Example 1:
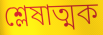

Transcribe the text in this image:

শ্লেষাত্মক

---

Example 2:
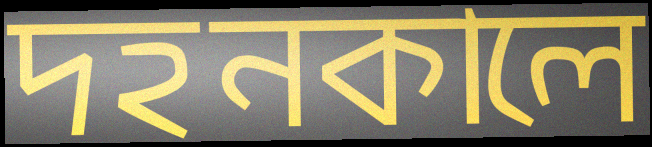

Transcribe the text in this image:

দহনকালে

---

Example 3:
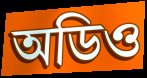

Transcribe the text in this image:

অডিও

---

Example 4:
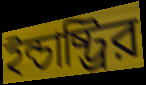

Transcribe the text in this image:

ইন্ডাষ্ট্রির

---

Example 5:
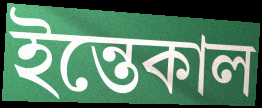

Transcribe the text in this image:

ইন্তেকাল